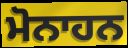
ਮੋਨਾਹਨ